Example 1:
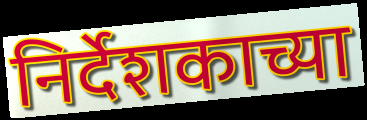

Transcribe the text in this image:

निर्देशकाच्या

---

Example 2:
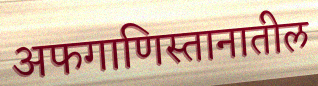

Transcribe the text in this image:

अफगाणिस्तानातील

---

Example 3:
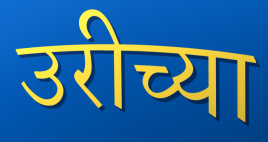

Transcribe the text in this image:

उरीच्या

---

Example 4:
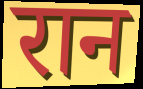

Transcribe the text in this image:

रान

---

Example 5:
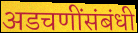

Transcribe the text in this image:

अडचणींसंबंधी